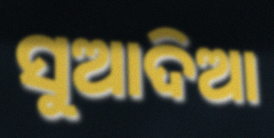
ସୁଆଦିଆ